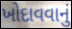
ખોદાવવાનું